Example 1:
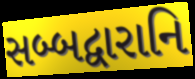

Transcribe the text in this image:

સબ્બદ્વારાનિ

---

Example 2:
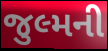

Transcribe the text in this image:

જુલ્મની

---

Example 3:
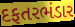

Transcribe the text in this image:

દફતરભંડાર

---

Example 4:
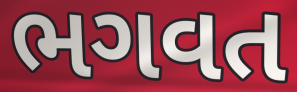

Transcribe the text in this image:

ભગવત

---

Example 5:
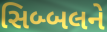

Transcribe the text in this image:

સિબ્બલને